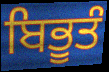
ਬਿਭੂਤੰ